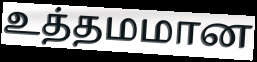
உத்தமமான